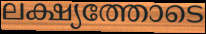
ലക്ഷ്യത്തോടെ